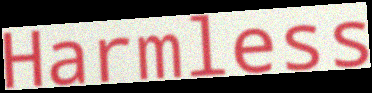
Harmless